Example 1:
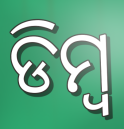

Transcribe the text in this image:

ଡିମ୍ଵ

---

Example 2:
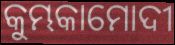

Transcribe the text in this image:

କୁମ୍ଭକାମୋଦୀ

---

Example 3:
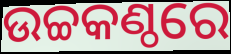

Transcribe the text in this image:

ଉଚ୍ଚକଣ୍ଠରେ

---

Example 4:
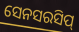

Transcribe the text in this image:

ସେନସରସିପ୍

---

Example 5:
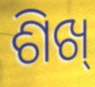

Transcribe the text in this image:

ଶିଖ୍